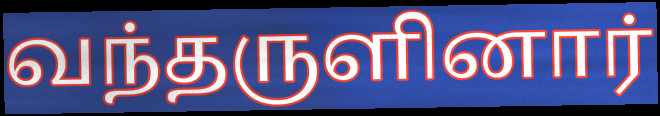
வந்தருளினார்